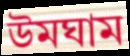
উমঘাম